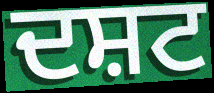
ਦਸ਼ਟ